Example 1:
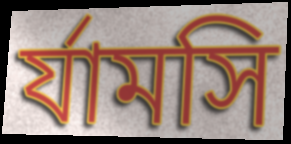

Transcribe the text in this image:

র্যামসি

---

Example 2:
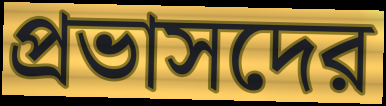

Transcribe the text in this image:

প্রভাসদের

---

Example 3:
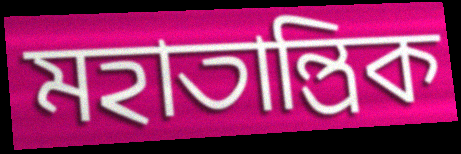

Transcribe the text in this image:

মহাতান্ত্রিক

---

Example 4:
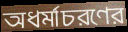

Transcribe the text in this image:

অধর্মাচরণের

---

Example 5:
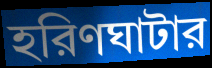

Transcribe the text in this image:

হরিণঘাটার